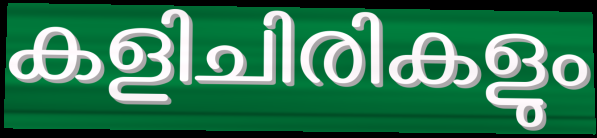
കളിചിരികളും